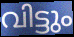
വിട്ടും